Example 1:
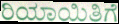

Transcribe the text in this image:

ರಿಯಾಯಿತಿಗೆ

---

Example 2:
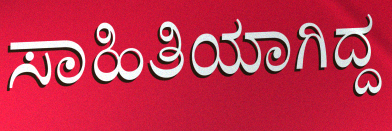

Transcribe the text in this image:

ಸಾಹಿತಿಯಾಗಿದ್ದ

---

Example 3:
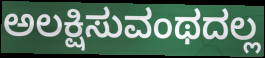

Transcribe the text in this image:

ಅಲಕ್ಷಿಸುವಂಥದಲ್ಲ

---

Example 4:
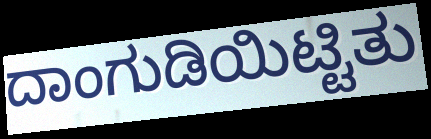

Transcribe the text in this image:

ದಾಂಗುಡಿಯಿಟ್ಟಿತು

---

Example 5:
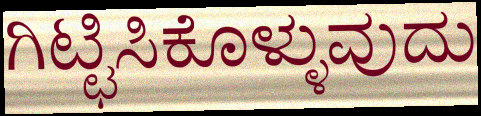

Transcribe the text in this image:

ಗಿಟ್ಟಿಸಿಕೊಳ್ಳುವುದು